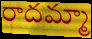
రాదమ్మా